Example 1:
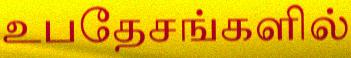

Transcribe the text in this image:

உபதேசங்களில்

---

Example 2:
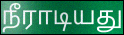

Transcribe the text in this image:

நீராடியது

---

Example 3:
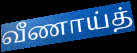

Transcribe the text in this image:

வீணாய்த்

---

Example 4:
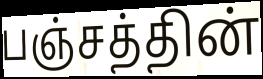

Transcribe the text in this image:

பஞ்சத்தின்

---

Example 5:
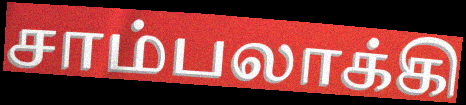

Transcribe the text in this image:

சாம்பலாக்கி